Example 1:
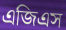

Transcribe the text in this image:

এজিএস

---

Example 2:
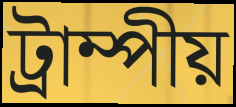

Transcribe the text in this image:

ট্রাম্পীয়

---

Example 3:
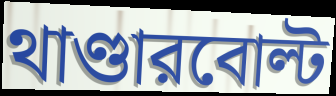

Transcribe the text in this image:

থাণ্ডারবোল্ট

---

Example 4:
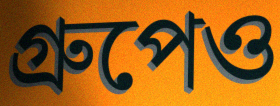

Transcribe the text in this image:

গ্রুপেও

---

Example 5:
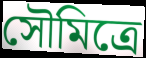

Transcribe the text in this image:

সৌমিত্রে